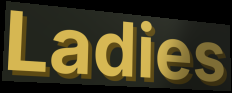
Ladies